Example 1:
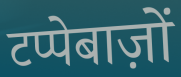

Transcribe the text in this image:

टप्पेबाज़ों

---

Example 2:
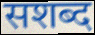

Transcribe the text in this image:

सशब्द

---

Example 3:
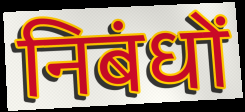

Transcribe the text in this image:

निबंधों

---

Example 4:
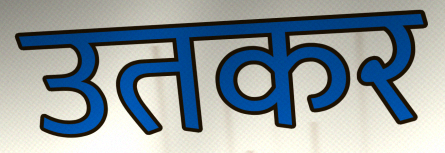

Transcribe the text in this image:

उतकर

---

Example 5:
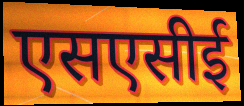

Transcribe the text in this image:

एसएसीई